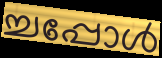
ച്ചപ്പോൾ